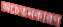
অচেতনকারণ